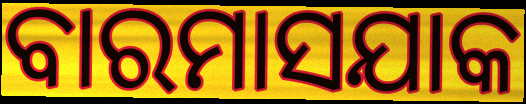
ବାରମାସଯାକ